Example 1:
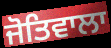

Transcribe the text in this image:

ਜੋਤਿਵਾਲਾ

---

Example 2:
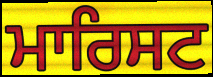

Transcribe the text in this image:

ਮਾਰਿਸਟ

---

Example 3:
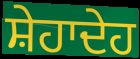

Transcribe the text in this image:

ਸ਼ੇਹਾਦੇਹ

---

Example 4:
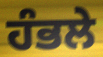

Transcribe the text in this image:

ਹੰਭਲੇ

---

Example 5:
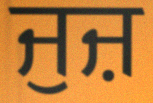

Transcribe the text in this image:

ਜੁਜ਼